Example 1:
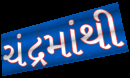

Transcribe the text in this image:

ચંદ્રમાંથી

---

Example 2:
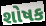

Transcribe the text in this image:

શોષક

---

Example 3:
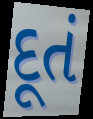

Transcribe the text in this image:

દૂતં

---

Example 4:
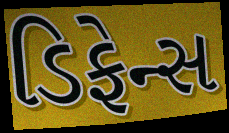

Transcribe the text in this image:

ડિફેન્સ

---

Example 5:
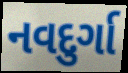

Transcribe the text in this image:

નવદુર્ગા